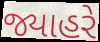
જ્યાહરે